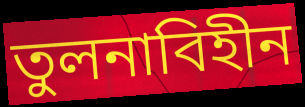
তুলনাবিহীন